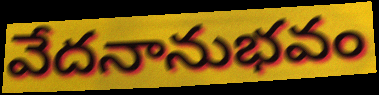
వేదనానుభవం